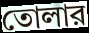
তোলার